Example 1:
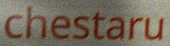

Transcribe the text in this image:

chestaru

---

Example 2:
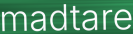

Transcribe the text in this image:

madtare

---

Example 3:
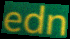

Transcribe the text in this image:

edn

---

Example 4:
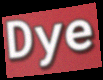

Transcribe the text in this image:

Dye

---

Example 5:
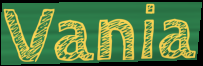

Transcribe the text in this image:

Vania